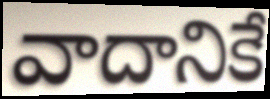
వాదానికే